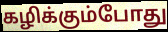
கழிக்கும்போது